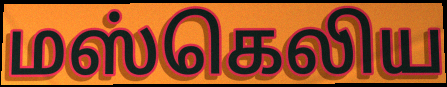
மஸ்கெலிய